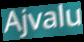
Ajvalu